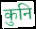
कुनि